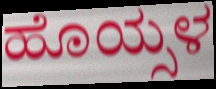
ಹೊಯ್ಸಳ